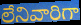
లేనివారిగా